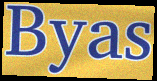
Byas